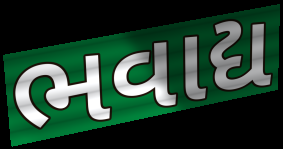
ભવાદ્ય